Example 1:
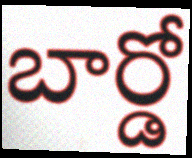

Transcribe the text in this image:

బార్డో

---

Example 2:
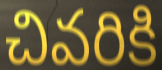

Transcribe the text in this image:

చివరికి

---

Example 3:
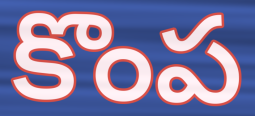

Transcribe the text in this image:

కొంప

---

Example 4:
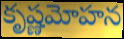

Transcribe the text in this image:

కృష్ణమోహన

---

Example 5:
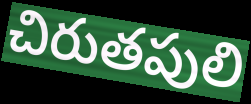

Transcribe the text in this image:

చిరుతపులి